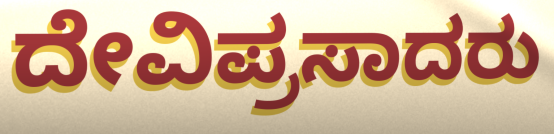
ದೇವಿಪ್ರಸಾದರು